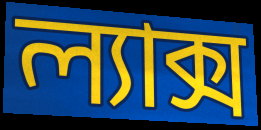
ল্যাক্স